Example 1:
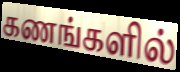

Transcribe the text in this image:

கணங்களில்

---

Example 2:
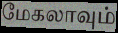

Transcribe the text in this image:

மேகலாவும்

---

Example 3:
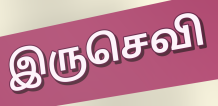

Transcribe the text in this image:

இருசெவி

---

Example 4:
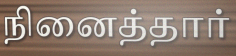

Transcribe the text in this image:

நினைத்தார்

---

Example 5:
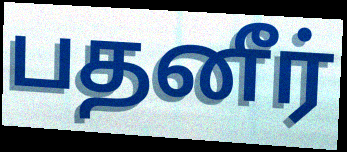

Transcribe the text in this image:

பதனீர்